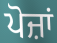
ਪੋਜ਼ਾਂ